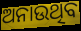
ଅନାଉଥିବ